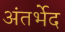
अंतर्भेद